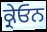
ਕ੍ਰੇਓਨ